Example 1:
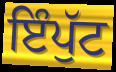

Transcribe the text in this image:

ਇੰਪੁੱਟ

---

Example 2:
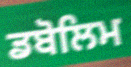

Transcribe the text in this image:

ਡਬੋਲਿਮ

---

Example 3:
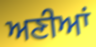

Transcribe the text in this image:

ਅਣੀਆਂ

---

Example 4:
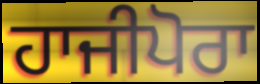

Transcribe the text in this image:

ਹਾਜੀਪੋਰਾ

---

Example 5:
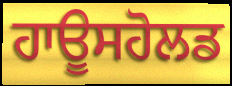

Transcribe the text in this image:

ਹਾਊਸਹੋਲਡ